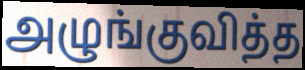
அழுங்குவித்த